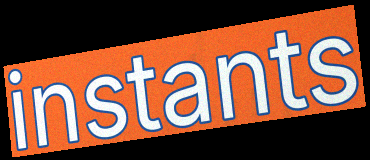
instants